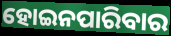
ହୋଇନପାରିବାର